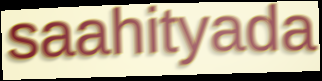
saahityada